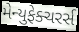
મેન્યુફેક્ચરર્સ